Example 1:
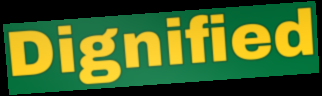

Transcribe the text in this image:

Dignified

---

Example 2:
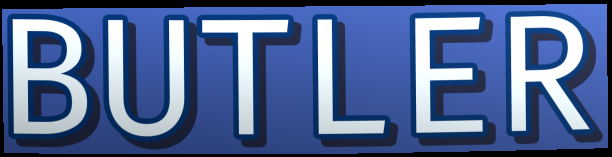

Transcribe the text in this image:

BUTLER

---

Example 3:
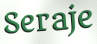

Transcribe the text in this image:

Seraje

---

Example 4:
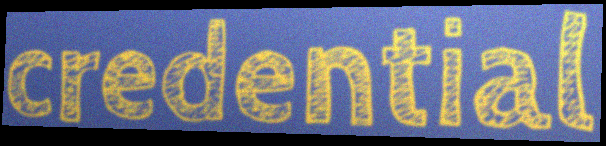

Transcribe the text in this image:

credential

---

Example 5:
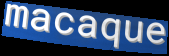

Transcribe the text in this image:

macaque